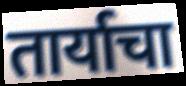
तार्याचा